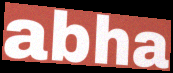
abha